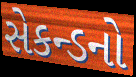
સેકન્ડનો